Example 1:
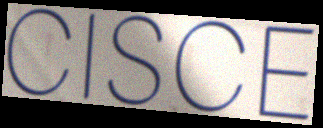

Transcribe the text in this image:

CISCE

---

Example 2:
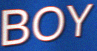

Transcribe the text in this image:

BOY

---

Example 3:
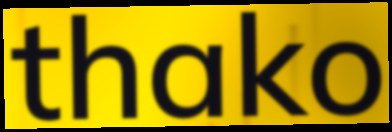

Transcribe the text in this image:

thako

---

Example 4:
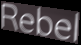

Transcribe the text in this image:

Rebel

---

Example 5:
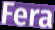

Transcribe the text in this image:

Fera